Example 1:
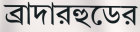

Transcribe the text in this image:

ব্রাদারহুডের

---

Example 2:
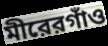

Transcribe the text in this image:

মীরেরগাঁও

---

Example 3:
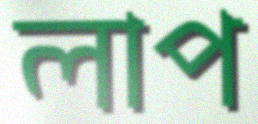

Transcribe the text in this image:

লাপ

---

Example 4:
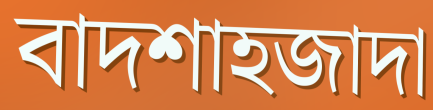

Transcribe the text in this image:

বাদশাহজাদা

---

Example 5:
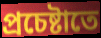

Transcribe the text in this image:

প্রচেষ্টাতে